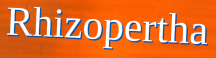
Rhizopertha